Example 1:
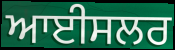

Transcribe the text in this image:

ਆਈਸਲਰ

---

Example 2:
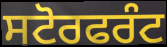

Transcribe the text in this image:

ਸਟੋਰਫਰੰਟ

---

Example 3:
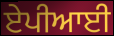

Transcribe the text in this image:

ਏਪੀਆਈ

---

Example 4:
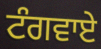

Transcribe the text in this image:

ਟੰਗਵਾਏ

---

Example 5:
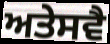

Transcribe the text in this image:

ਅਤੇਸਵੈ